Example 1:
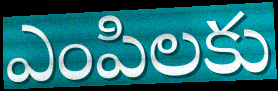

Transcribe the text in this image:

ఎంపిలకు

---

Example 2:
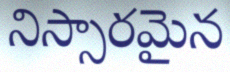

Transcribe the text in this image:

నిస్సారమైన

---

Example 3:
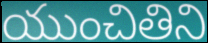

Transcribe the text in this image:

యుంచితిని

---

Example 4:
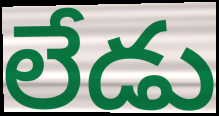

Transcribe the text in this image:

లేడు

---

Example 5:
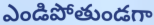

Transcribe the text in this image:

ఎండిపోతుండగా